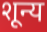
शून्य